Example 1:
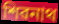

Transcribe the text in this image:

শিৱনাথ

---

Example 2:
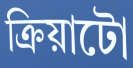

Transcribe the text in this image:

ক্ৰিয়াটো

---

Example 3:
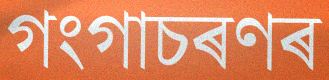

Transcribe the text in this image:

গংগাচৰণৰ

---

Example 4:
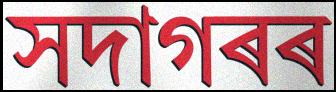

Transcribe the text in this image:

সদাগৰৰ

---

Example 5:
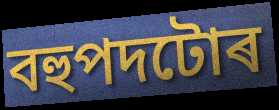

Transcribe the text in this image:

বহুপদটোৰ